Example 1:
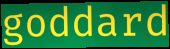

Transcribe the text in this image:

goddard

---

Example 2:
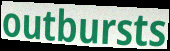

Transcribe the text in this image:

outbursts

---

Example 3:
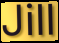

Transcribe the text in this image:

Jill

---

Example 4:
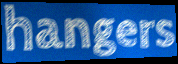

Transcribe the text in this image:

hangers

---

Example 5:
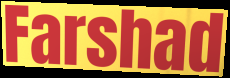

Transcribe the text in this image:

Farshad